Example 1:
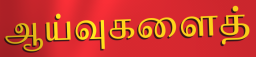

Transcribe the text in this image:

ஆய்வுகளைத்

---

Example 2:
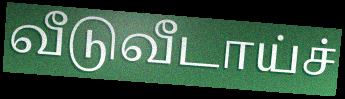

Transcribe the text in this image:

வீடுவீடாய்ச்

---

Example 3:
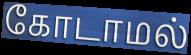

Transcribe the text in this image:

கோடாமல்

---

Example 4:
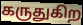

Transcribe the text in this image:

கருதுகிற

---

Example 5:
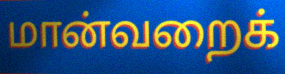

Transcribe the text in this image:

மான்வறைக்